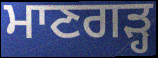
ਮਾਣਗੜ੍ਹ